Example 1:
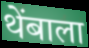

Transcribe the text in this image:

थेंबाला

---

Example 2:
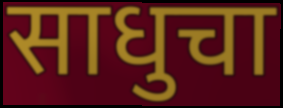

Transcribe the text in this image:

साधुचा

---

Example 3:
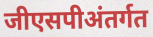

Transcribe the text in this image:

जीएसपीअंतर्गत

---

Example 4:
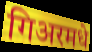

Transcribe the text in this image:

गिअरमधे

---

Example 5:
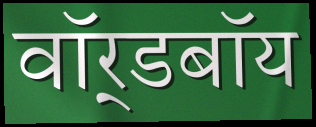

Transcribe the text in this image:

वॉर्डबॉय